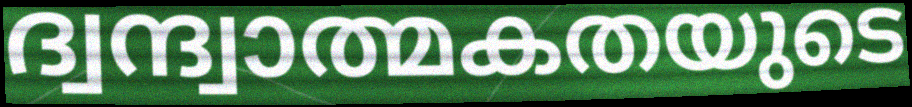
ദ്വന്ദ്വാത്മകതയുടെ